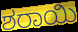
ಶರಾಯಿ